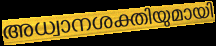
അധ്വാനശക്തിയുമായി